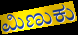
ಮಿಣುಕು